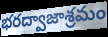
భరద్వాజాశ్రమం